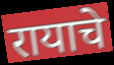
रायाचे